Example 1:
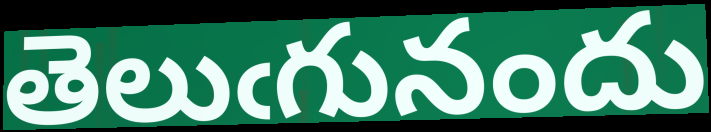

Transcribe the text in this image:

తెలుఁగునందు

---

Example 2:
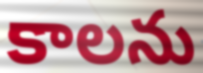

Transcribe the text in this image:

కాలను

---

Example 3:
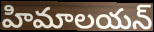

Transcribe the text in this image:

హిమాలయన్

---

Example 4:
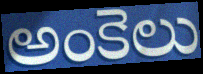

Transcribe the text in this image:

అంకెలు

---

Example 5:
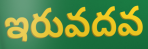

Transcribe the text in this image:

ఇరువదవ